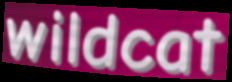
wildcat